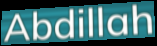
Abdillah